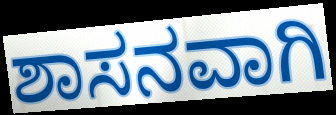
ಶಾಸನವಾಗಿ